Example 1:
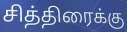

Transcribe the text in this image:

சித்திரைக்கு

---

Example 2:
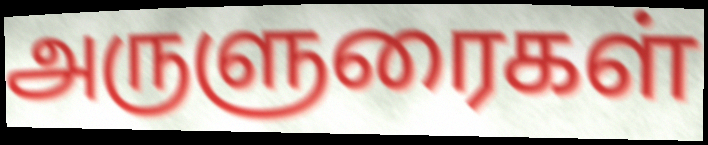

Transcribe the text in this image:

அருளுரைகள்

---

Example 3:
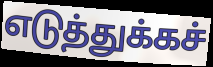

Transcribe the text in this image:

எடுத்துக்கச்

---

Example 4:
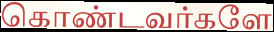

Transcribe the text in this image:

கொண்டவர்களே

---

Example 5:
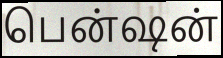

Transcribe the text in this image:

பென்ஷன்